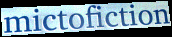
mictofiction